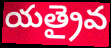
యత్రైవ